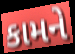
કામને